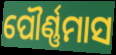
ପୌର୍ଣ୍ଣମାସ